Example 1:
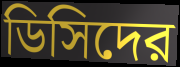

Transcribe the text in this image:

ডিসিদের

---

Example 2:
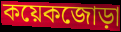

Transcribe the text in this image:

কয়েকজোড়া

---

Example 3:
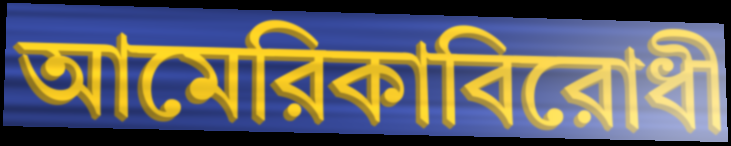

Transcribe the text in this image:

আমেরিকাবিরোধী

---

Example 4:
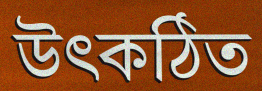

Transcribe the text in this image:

উৎকঠিত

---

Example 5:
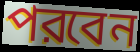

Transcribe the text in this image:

পরবেন